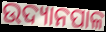
ଉଦ୍ୟାନପାଳ